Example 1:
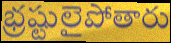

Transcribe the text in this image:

భ్రష్టులైపోతారు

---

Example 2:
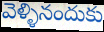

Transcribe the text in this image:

వెళ్ళినందుకు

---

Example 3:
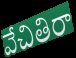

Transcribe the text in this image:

వేచితిరా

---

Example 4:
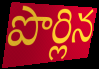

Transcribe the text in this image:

పొర్లిన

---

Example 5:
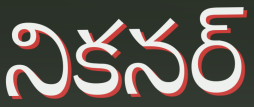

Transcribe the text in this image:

నికనర్